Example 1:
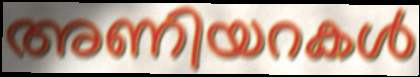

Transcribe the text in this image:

അണിയറകൾ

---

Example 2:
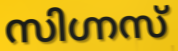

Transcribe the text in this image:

സിഗ്നസ്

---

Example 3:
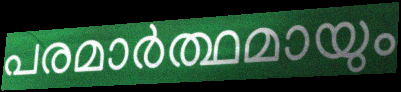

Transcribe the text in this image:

പരമാർത്ഥമായും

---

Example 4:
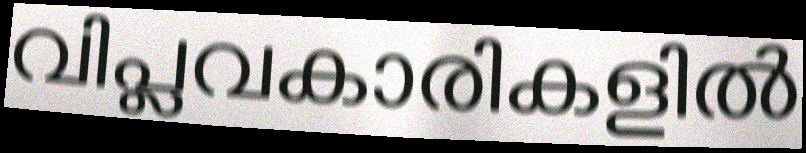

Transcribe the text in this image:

വിപ്ലവകാരികളിൽ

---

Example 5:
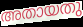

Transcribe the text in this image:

അതായതു